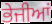
ਭੇਜੀਆਂ